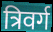
त्रिवर्ग